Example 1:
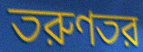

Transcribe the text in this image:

তরুণতর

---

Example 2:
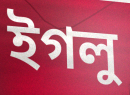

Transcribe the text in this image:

ইগলু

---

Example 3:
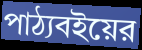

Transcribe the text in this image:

পাঠ্যবইয়ের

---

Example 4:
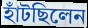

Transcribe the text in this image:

হাঁটছিলেন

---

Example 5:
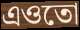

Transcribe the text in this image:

এওতো